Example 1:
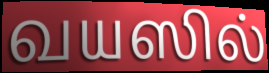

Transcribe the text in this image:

வயஸில்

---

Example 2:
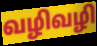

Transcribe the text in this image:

வழிவழி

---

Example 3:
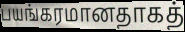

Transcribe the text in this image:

பயங்கரமானதாகத்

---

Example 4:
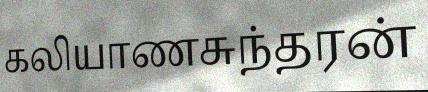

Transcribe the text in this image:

கலியாணசுந்தரன்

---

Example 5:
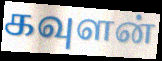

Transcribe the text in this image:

கவுளன்